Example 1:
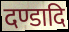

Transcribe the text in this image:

दण्डादि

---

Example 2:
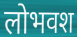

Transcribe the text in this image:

लोभवश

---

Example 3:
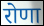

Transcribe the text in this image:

रोणा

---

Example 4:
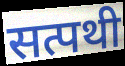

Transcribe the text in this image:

सत्पथी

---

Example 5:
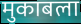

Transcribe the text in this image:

मुकाबला